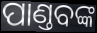
ପାଣ୍ତବଙ୍କ